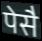
पेसै